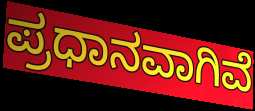
ಪ್ರಧಾನವಾಗಿವೆ